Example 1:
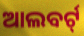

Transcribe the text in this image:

ଆଲବର୍ଟ୍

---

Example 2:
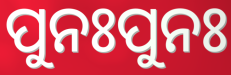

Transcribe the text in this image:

ପୁନଃପୁନଃ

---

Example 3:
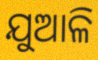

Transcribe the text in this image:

ଯୁଆଳି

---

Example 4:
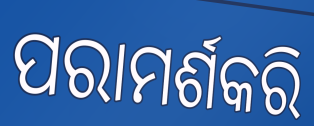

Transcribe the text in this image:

ପରାମର୍ଶକରି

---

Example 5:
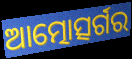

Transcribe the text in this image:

ଆତ୍ମୋତ୍ସର୍ଗର